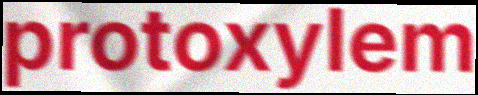
protoxylem